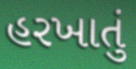
હરખાતું